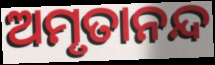
ଅମୃତାନନ୍ଦ